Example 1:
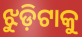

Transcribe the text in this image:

ଝୁଡ଼ିଟାକୁ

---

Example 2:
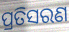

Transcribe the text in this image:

ପ୍ରତିସରଣ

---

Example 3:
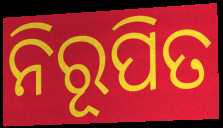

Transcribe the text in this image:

ନିରୂପିତ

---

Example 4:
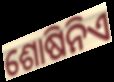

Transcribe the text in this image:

ଶୋଷିନିଏ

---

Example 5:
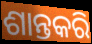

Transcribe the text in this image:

ଶାନ୍ତକରି